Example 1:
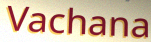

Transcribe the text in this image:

Vachana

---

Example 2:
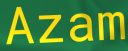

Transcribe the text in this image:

Azam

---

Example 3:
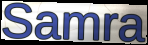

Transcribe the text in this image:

Samra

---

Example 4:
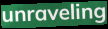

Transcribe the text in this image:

unraveling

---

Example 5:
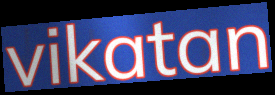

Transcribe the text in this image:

vikatan